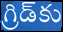
గ్రిడ్‌కు